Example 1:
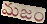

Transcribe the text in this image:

మజం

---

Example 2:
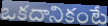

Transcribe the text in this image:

ఒకదానికంటే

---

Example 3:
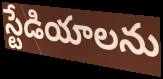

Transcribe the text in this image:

స్టేడియాలను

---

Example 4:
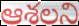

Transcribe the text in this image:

ఆశలని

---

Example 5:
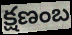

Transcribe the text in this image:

క్షణంబ